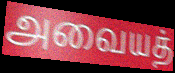
அவையத்